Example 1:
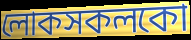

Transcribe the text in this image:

লোকসকলকো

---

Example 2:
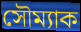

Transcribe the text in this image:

সৌম্যাক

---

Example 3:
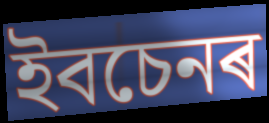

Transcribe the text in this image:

ইবচেনৰ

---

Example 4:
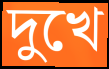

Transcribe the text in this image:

দুখে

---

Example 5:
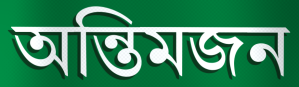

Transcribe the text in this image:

অন্তিমজন